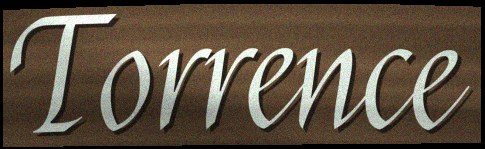
Torrence